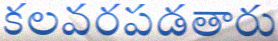
కలవరపడతారు